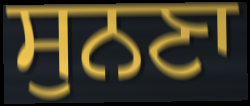
ਸੁਨਣਾ